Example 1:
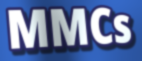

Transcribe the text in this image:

MMCs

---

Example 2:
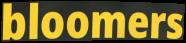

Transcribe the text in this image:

bloomers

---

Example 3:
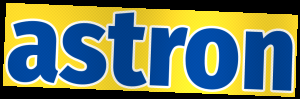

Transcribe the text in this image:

astron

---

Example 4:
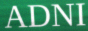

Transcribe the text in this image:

ADNI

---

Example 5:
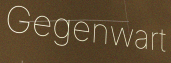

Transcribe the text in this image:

Gegenwart